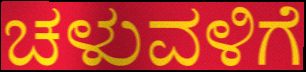
ಚಳುವಳಿಗೆ